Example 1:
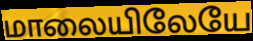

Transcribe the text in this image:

மாலையிலேயே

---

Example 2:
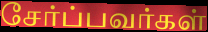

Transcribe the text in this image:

சேர்ப்பவர்கள்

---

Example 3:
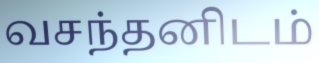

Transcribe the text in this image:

வசந்தனிடம்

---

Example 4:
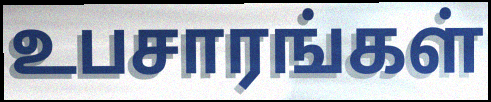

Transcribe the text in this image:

உபசாரங்கள்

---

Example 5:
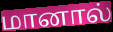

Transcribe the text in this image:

மானால்